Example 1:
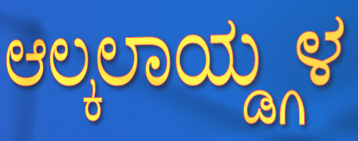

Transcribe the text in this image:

ಆಲ್ಕಲಾಯ್ಡ್ಗಳ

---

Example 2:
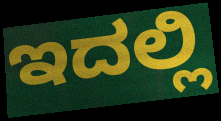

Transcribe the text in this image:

ಇದಲ್ಲಿ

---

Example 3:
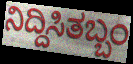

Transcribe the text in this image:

ನಿದ್ದಿಸಿತಬ್ಬಂ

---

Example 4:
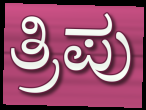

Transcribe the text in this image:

ತ್ರಿಪು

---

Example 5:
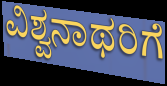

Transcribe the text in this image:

ವಿಶ್ವನಾಥರಿಗೆ